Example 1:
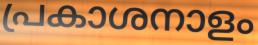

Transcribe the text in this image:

പ്രകാശനാളം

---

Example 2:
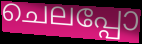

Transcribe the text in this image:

ചെലപ്പോ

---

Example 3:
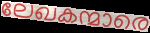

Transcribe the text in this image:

ലേഖകന്മാരെ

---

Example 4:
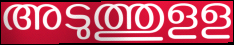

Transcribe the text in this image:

അടുത്തുളള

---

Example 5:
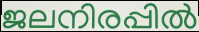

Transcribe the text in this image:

ജലനിരപ്പിൽ